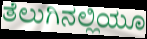
ತೆಲುಗಿನಲ್ಲಿಯೂ